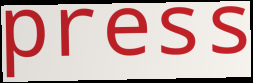
press